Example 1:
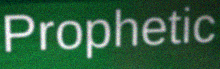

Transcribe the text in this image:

Prophetic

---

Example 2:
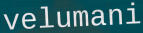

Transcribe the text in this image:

velumani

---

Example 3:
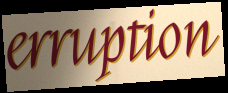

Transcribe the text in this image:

erruption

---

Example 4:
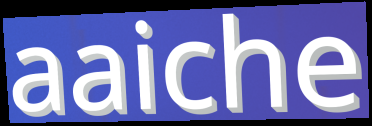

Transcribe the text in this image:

aaiche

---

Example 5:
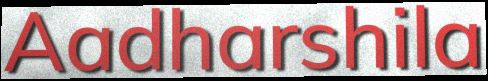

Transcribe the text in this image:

Aadharshila